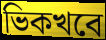
ভিকখবে